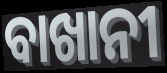
ବାଖାନୀ